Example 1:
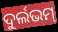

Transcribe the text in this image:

ଦୁର୍ଲଭମ୍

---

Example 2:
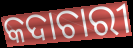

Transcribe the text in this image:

କଦାଚାରୀ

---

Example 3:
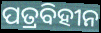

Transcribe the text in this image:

ପତ୍ରବିହୀନ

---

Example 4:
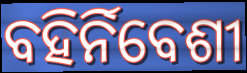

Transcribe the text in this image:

ବହିର୍ନିବେଶୀ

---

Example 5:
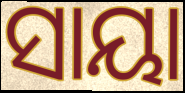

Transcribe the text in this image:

ସାୟା